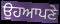
ਉਹਆਪਣੇ